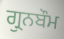
ਗ੍ਰੁਨਬੌਮ